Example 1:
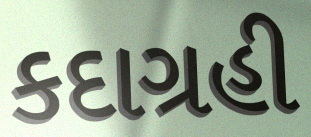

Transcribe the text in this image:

કદાગ્રહી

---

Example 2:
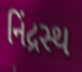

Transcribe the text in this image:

નિંદ્રસ્થ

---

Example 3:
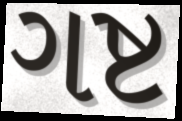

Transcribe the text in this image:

ગષ્ટ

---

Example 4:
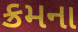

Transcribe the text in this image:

ક્રમના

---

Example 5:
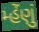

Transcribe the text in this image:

મ્હેંણું